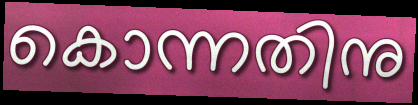
കൊന്നതിനു